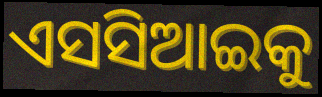
ଏସସିଆଇକୁ